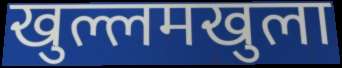
खुल्लमखुला